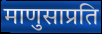
माणुसाप्रति